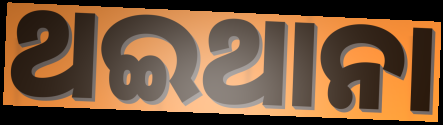
ଥଇଥାନା